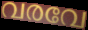
വരവേ